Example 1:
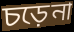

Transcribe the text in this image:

চড়েনা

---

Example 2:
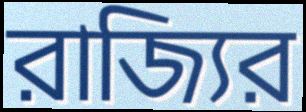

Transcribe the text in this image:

রাজ্যির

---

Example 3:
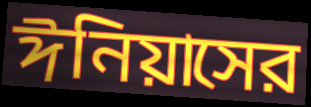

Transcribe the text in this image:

ঈনিয়াসের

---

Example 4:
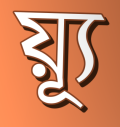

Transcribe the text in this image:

য়্যূ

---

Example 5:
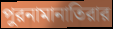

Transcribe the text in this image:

পুরনামানাতিরার